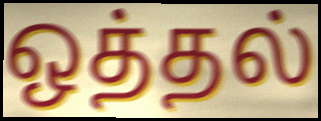
ஒத்தல்